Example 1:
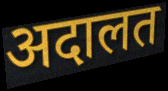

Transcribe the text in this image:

अदालत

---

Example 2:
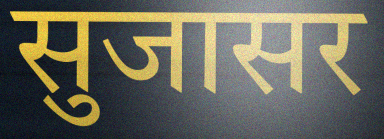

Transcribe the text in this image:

सुजासर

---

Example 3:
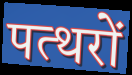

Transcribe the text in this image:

पत्थरों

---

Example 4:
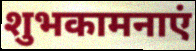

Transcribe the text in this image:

शुभकामनाएं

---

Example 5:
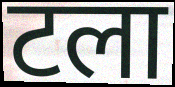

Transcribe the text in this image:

टला